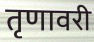
तृणावरी